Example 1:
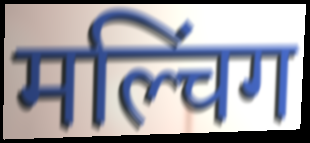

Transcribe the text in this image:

मल्चिंग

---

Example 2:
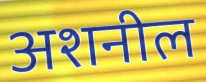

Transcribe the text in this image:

अशनील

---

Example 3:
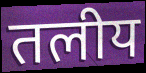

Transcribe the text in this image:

तलीय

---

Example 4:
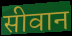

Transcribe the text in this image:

सीवान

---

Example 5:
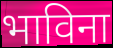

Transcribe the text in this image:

भाविना